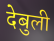
देबुली